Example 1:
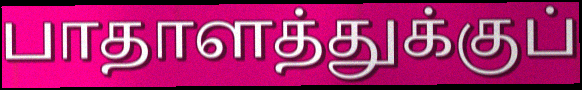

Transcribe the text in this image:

பாதாளத்துக்குப்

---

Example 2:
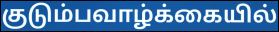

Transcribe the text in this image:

குடும்பவாழ்க்கையில்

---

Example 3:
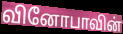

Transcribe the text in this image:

வினோபாவின்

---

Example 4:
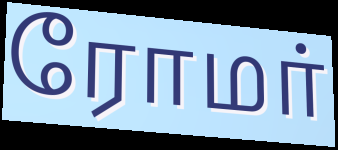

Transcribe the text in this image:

ரோமர்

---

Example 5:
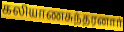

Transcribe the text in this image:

கலியாணசுந்தரனார்